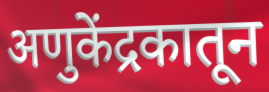
अणुकेंद्रकातून